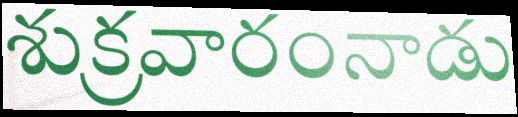
శుక్రవారంనాడు